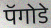
पॅगोडे